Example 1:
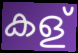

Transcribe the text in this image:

കള്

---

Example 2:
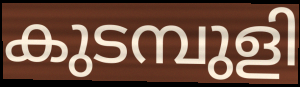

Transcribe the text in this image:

കുടമ്പുളി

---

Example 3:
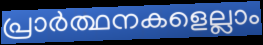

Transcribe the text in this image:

പ്രാർത്ഥനകളെല്ലാം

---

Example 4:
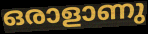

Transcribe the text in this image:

ഒരാളാണു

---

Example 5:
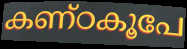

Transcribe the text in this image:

കണ്ഠകൂപേ